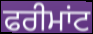
ਫਰੀਮਾਂਟ